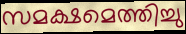
സമക്ഷമെത്തിച്ചു